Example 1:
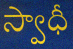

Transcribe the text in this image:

స్వాధీ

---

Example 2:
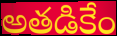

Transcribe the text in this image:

అతడికేం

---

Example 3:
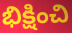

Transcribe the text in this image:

భిక్షించి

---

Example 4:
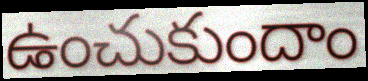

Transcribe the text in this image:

ఉంచుకుందాం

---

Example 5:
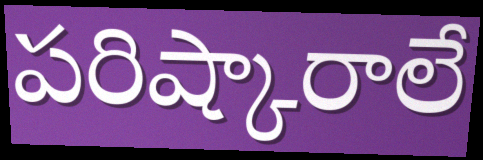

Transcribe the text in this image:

పరిష్కారాలే